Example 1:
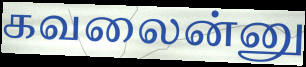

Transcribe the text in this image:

கவலைன்னு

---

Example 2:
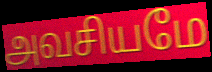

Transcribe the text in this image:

அவசியமே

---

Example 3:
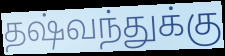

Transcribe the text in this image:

தஷ்வந்துக்கு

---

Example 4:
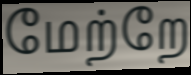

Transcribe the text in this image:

மேற்றே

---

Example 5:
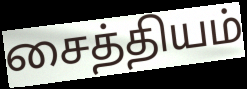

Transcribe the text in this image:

சைத்தியம்